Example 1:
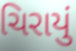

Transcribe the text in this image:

ચિરાયું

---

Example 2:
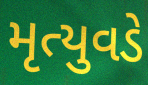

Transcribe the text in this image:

મૃત્યુવડે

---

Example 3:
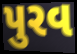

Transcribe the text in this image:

પુરવ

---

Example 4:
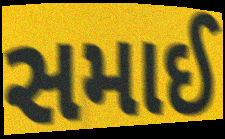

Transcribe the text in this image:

સમાઈ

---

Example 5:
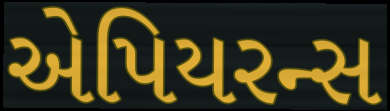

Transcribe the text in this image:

એપિયરન્સ